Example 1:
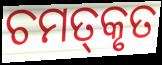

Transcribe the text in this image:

ଚମତ୍‌କୃତ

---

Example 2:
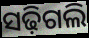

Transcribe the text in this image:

ସଢ଼ିଗଲି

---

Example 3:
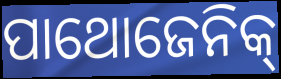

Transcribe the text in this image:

ପାଥୋଜେନିକ୍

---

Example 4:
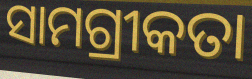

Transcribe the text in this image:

ସାମଗ୍ରୀକତା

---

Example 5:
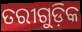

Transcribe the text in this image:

ତରୀଗୁଡ଼ିକ